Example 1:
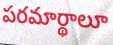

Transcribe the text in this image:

పరమార్థాలూ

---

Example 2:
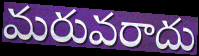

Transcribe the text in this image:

మరువరాదు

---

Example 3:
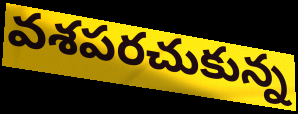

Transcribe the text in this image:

వశపరచుకున్న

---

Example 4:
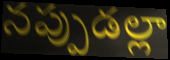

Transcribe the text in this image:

నప్పుడల్లా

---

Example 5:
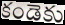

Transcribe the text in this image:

కండెకు